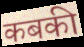
कबकी